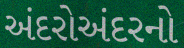
અંદરોઅંદરનો